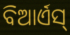
ବିଆର୍ଏସ୍